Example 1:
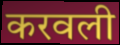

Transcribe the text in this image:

करवली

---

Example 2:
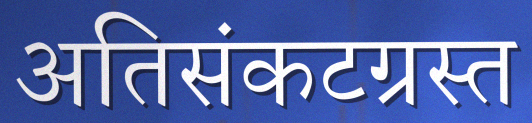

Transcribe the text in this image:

अतिसंकटग्रस्त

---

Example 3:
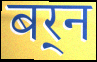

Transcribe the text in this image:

बर्न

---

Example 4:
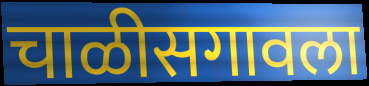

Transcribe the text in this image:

चाळीसगावला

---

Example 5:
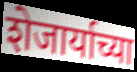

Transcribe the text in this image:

शेजार्याच्या